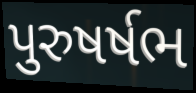
પુરુષર્ષભ